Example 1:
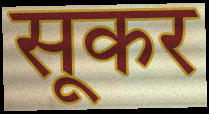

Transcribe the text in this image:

सूकर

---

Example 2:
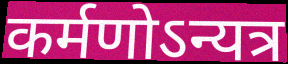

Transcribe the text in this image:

कर्मणोऽन्यत्र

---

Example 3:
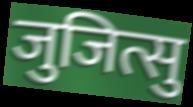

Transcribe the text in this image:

जुजित्सु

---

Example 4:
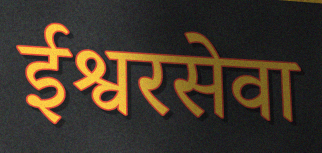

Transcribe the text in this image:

ईश्वरसेवा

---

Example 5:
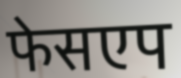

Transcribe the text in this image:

फेसएप